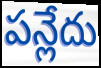
పన్లేదు